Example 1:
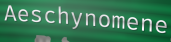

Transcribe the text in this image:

Aeschynomene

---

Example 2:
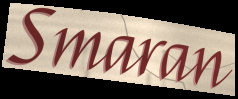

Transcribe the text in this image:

Smaran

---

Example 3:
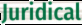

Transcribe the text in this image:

Juridical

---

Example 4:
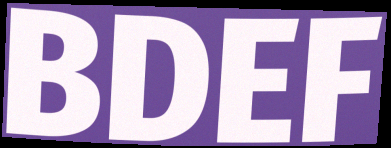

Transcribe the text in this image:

BDEF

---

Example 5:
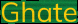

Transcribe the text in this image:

Ghate